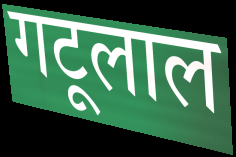
गटूलाल